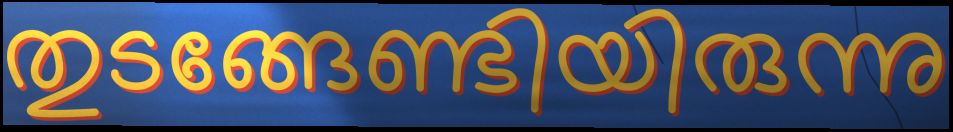
തുടങ്ങേണ്ടിയിരുന്നു